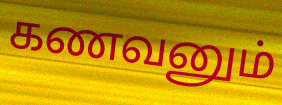
கணவனும்